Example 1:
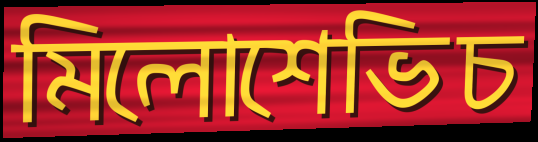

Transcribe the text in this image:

মিলোশেভিচ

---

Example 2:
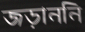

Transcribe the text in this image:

জড়াননি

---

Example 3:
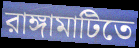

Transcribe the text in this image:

রাঙ্গামাটিতে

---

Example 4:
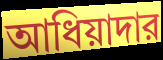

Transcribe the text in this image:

আধিয়াদার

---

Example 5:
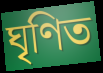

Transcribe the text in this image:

ঘৃণিত